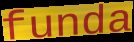
funda